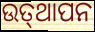
ଉତ୍‌ଥାପନ